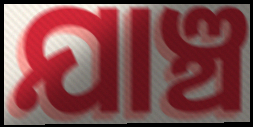
ଯାଞ୍ଚ